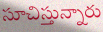
సూచిస్తున్నారు